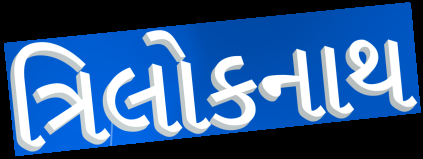
ત્રિલોકનાથ